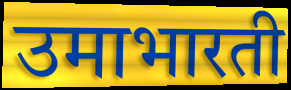
उमाभारती